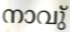
നാവു്